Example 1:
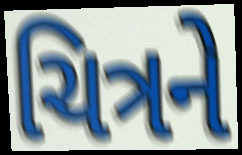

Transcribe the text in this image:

ચિત્રને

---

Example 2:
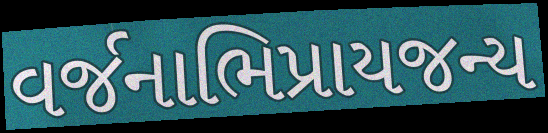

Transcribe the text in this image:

વર્જનાભિપ્રાયજન્ય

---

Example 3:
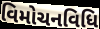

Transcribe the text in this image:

વિમોચનવિધિ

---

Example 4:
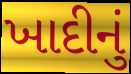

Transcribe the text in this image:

ખાદીનું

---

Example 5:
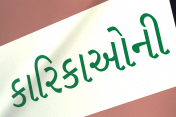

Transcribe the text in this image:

કારિકાઓની